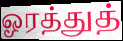
ஓரத்துத்